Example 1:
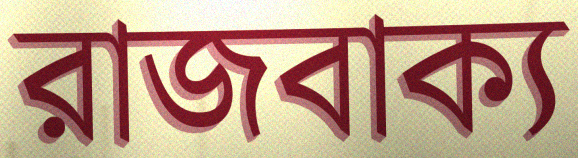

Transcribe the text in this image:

রাজবাক্য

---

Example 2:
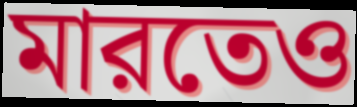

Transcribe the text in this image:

মারতেও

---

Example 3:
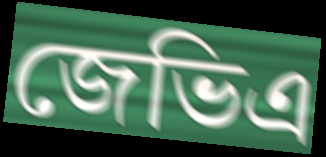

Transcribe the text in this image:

জেভিএ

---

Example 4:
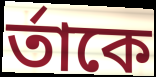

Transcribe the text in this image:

র্তাকে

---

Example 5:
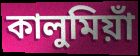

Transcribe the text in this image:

কালুমিয়াঁ